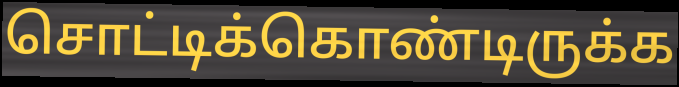
சொட்டிக்கொண்டிருக்க